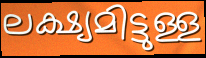
ലക്ഷ്യമിട്ടുള്ള